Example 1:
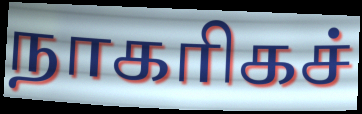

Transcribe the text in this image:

நாகரிகச்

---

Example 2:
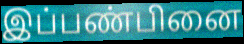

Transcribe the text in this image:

இப்பண்பினை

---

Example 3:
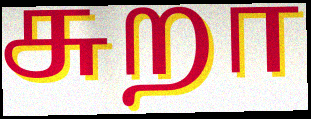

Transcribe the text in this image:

சுறா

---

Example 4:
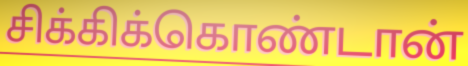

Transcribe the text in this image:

சிக்கிக்கொண்டான்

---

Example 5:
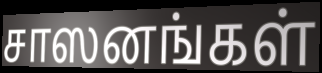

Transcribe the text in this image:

சாஸனங்கள்